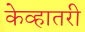
केव्हातरी